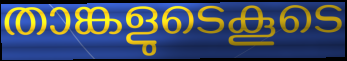
താങ്കളുടെകൂടെ